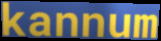
kannum